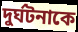
দুর্ঘটনাকে